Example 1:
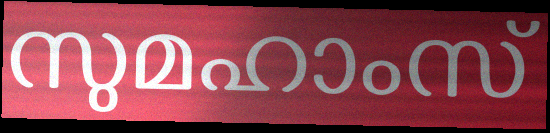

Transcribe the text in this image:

സുമഹാംസ്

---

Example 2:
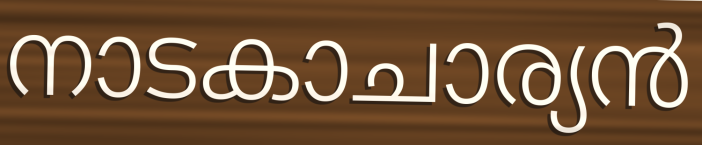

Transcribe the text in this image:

നാടകാചാര്യൻ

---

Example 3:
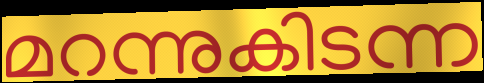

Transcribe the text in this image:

മറന്നുകിടന്ന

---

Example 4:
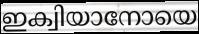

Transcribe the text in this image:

ഇക്വിയാനോയെ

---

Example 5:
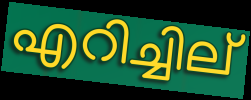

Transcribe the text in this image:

എറിച്ചില്